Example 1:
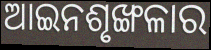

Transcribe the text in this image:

ଆଇନଶୃଙ୍ଖଳାର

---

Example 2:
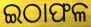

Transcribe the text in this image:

ଇଠାଫଳ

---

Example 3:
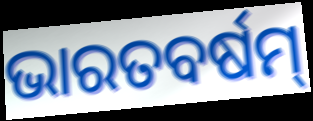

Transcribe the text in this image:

ଭାରତବର୍ଷମ୍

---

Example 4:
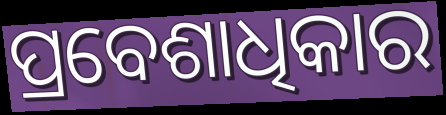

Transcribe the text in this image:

ପ୍ରବେଶାଧିକାର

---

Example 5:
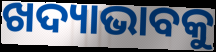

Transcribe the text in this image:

ଖଦ୍ୟାଭାବକୁ